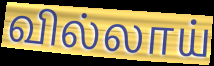
வில்லாய்